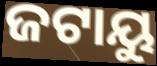
ଜଟାୟୁ